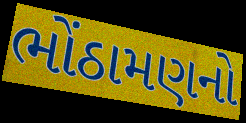
ભોંઠામણનો